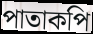
পাতাকপি